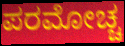
ಪರಮೋಚ್ಚ